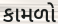
કામળો